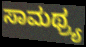
ಸಾಮಥ್ರ್ಯ